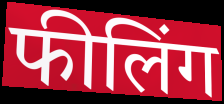
फीलिंग